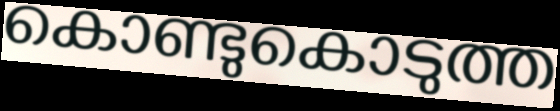
കൊണ്ടുകൊടുത്ത